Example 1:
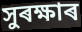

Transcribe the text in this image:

সুৰক্ষাৰ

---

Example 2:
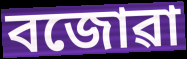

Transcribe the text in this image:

বজোৱা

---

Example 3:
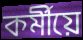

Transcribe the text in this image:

কৰ্মীয়ে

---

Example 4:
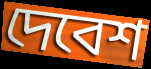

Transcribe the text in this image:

দেবেশ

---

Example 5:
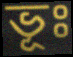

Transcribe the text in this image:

ভূঃ